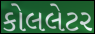
કોલલેટર